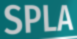
SPLA